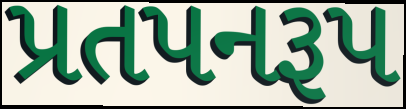
પ્રતપનરૂપ